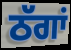
ਠੱਗਾਂ